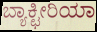
ಬ್ಯಾಕ್ಟೀರಿಯಾ